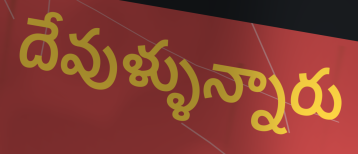
దేవుళ్ళున్నారు